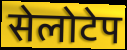
सेलोटेप